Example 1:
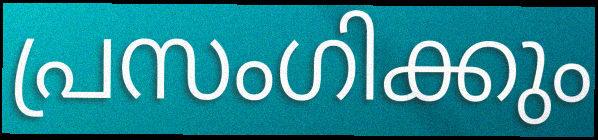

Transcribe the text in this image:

പ്രസംഗിക്കും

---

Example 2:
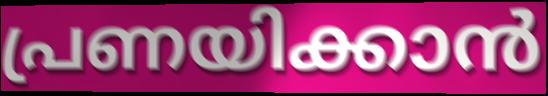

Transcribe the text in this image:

പ്രണയിക്കാൻ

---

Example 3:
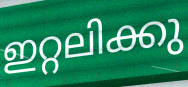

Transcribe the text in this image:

ഇറ്റലിക്കു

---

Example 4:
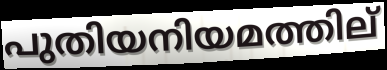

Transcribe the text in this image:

പുതിയനിയമത്തില്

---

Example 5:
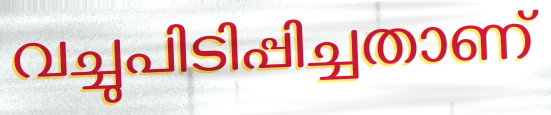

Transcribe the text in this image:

വച്ചുപിടിപ്പിച്ചതാണ്